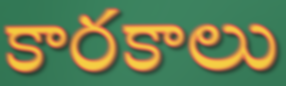
కారకాలు